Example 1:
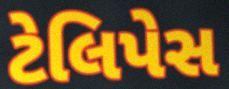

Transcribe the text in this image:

ટેલિપેસ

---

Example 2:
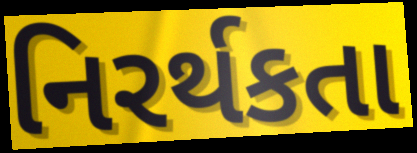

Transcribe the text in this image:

નિરર્થકતા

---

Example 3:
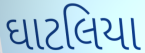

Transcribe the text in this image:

ઘાટલિયા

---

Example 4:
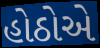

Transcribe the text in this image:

હોઠોએ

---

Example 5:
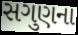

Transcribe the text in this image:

સગુણના